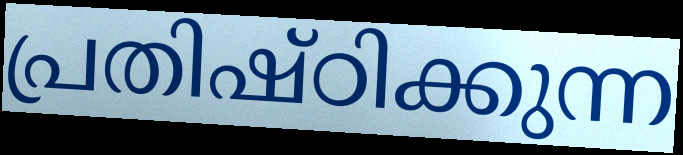
പ്രതിഷ്ഠിക്കുന്ന